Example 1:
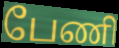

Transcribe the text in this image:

பேணி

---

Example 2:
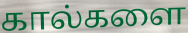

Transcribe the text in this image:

கால்களை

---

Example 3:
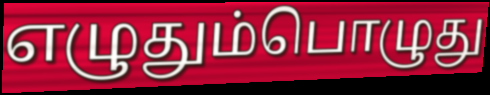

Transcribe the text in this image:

எழுதும்பொழுது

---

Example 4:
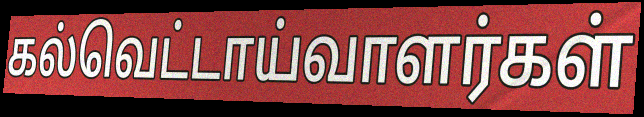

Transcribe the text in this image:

கல்வெட்டாய்வாளர்கள்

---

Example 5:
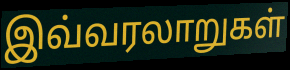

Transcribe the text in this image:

இவ்வரலாறுகள்